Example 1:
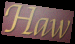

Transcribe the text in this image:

Haw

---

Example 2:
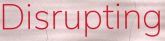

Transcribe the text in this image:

Disrupting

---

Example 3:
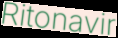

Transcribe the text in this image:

Ritonavir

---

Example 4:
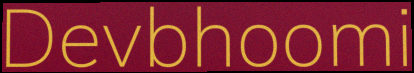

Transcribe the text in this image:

Devbhoomi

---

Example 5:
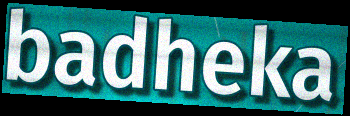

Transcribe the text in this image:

badheka